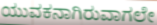
ಯುವಕನಾಗಿರುವಾಗಲೇ